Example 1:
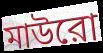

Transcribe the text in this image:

মাউরো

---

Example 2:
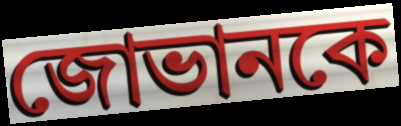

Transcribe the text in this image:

জোভানকে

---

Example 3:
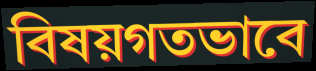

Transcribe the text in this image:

বিষয়গতভাবে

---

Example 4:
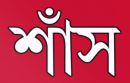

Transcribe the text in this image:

শাঁস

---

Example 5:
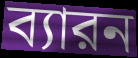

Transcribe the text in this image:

ব্যারন